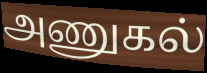
அணுகல்